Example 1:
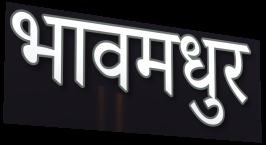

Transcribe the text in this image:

भावमधुर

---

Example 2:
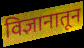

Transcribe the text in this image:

विज्ञानातून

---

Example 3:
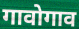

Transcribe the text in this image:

गावोगाव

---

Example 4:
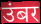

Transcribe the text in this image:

उंबर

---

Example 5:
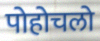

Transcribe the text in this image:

पोहोचलो